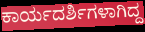
ಕಾರ್ಯದರ್ಶಿಗಳಾಗಿದ್ದ